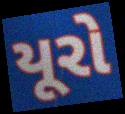
યૂરો